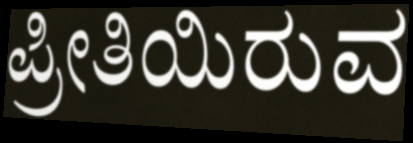
ಪ್ರೀತಿಯಿರುವ